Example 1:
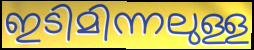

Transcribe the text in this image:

ഇടിമിന്നലുള്ള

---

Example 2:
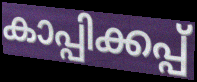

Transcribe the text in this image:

കാപ്പിക്കപ്പ്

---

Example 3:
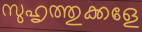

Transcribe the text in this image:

സുഹൃത്തുക്കളേ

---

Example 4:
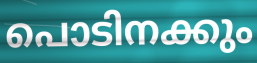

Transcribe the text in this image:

പൊടിനക്കും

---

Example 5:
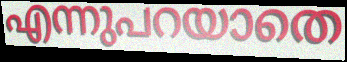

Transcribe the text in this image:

എന്നുപറയാതെ